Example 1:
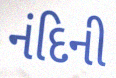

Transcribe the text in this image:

નંદિની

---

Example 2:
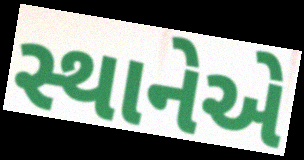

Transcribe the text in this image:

સ્થાનેએ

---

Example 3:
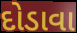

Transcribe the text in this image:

દોડાવા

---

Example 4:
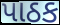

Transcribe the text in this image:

પાઠક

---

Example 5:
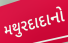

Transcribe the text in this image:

મથુરદાદાનો